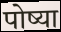
पोष्या